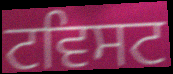
ਟਵਿਸਟ